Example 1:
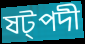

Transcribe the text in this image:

ষট্‌পদী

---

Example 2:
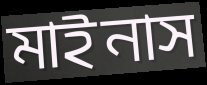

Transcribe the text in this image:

মাইনাস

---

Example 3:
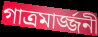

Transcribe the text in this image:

গাত্রমার্জ্জনী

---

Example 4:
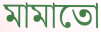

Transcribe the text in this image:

মামাতো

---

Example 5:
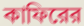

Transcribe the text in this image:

কাফিরের